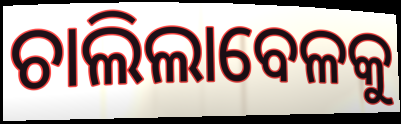
ଚାଲିଲାବେଳକୁ